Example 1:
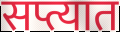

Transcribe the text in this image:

सप्त्यात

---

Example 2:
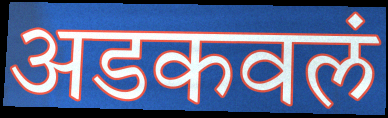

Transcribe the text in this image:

अडकवलं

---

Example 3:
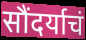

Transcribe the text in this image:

सौंदर्याचं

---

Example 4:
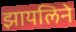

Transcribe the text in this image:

झायलिने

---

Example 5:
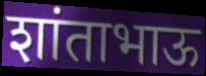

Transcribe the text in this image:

शांताभाऊ